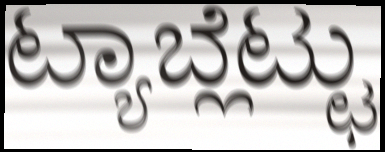
ಟ್ಯಾಬ್ಲೆಟ್ಟು